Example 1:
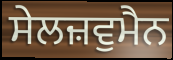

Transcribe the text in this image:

ਸੇਲਜ਼ਵੁਮੈਨ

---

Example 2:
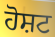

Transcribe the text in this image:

ਹੋਸ਼ਟ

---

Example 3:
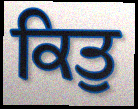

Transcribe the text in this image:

ਕਿਤੁ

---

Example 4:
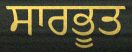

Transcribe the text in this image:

ਸਾਰਭੂਤ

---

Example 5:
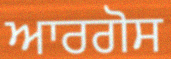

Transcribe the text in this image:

ਆਰਗੋਸ